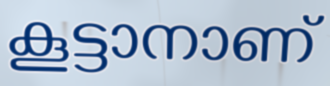
കൂട്ടാനാണ്